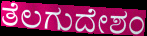
ತೆಲಗುದೇಶಂ